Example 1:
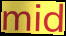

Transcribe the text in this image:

mid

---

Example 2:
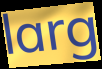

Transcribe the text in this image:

larg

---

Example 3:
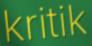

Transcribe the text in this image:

kritik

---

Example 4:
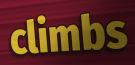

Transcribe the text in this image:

climbs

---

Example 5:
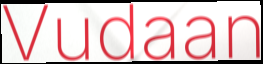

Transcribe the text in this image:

Vudaan